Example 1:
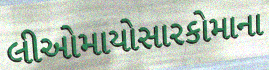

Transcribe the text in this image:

લીઓમાયોસારકોમાના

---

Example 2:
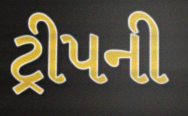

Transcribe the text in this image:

ટ્રીપની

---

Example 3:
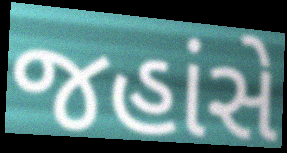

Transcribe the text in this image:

જહાંસે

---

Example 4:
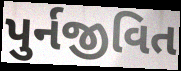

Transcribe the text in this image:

પુર્નજીવિત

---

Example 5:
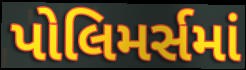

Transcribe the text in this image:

પોલિમર્સમાં